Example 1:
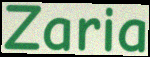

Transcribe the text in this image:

Zaria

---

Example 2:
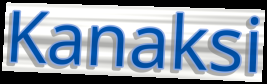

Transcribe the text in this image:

Kanaksi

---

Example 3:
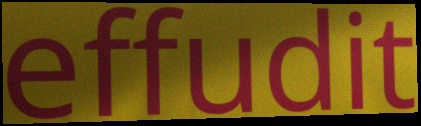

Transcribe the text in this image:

effudit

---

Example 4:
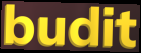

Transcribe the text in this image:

budit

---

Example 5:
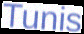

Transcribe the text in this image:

Tunis